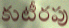
కుటీరపు